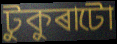
টুকুৰাটো